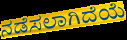
ನಡೆಸಲಾಗಿದೆಯೆ